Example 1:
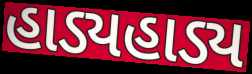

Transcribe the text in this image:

હાડ્યહાડ્ય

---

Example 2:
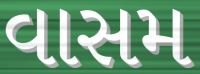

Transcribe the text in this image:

વાસમ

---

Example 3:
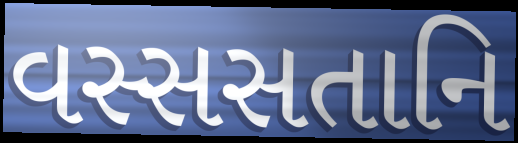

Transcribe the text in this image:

વસ્સસતાનિ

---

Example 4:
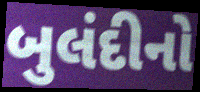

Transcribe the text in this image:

બુલંદીનો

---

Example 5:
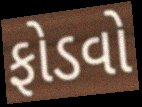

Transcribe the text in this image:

ફોડવો